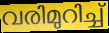
വരിമുറിച്ച്